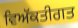
ਵਿਅੱਕਤੀਗਤ